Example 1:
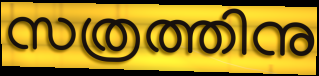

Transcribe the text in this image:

സത്രത്തിനു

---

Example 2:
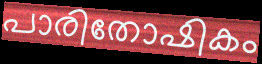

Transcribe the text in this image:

പാരിതോഷികം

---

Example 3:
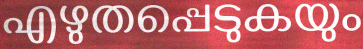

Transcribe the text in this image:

എഴുതപ്പെടുകയും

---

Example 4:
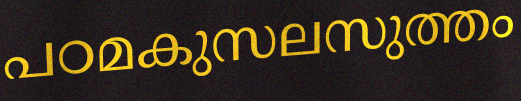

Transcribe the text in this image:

പഠമകുസലസുത്തം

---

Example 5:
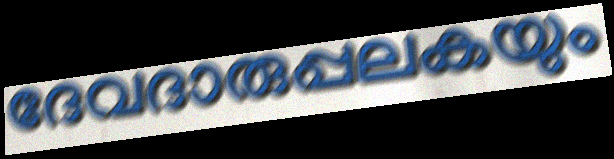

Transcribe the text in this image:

ദേവദാരുപ്പലകയും